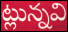
ట్లున్నవి